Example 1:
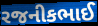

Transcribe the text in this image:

રજનીકભાઈ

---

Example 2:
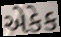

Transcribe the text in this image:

એકેક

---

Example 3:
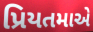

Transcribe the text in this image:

પ્રિયતમાએ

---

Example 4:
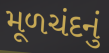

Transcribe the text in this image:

મૂળચંદનું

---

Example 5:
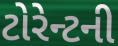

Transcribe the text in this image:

ટોરેન્ટની